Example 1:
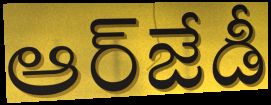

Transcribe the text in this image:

ఆర్‌జేడీ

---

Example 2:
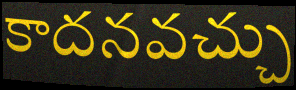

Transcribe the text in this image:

కాదనవచ్చు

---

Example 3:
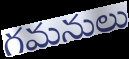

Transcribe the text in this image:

గమనులు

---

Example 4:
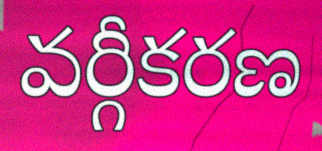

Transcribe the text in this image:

వర్గీకరణ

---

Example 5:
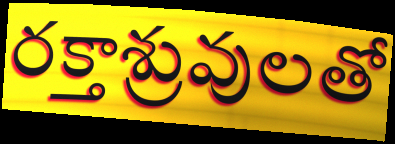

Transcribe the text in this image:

రక్తాశ్రువులతో